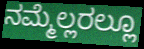
ನಮ್ಮೆಲ್ಲರಲ್ಲೂ